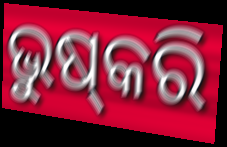
ଭୁଷ୍‍କରି